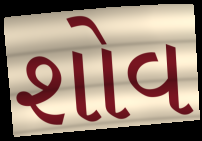
શોવ